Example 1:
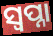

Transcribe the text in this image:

ସ୍ୱପ୍ନା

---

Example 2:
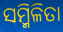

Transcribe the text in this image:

ସମ୍ମିଳିତା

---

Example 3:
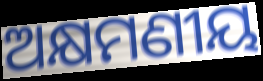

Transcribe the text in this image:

ଅକ୍ଷମଣୀୟ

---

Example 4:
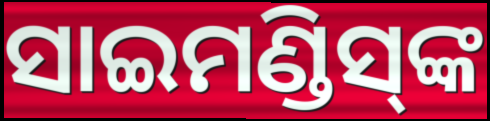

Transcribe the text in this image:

ସାଇମଣ୍ଡିସ୍‍ଙ୍କ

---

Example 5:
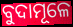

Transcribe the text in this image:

ବୁଦାମୂଳେ